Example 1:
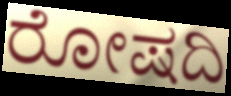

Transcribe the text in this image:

ರೋಷದಿ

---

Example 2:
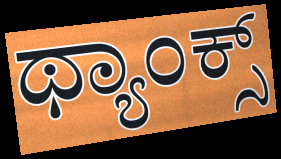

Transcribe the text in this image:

ಥ್ಯಾಂಕ್ಸ್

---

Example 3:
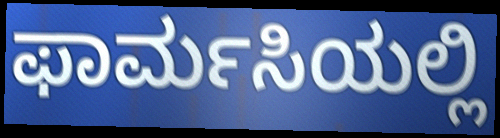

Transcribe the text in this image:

ಫಾರ್ಮಸಿಯಲ್ಲಿ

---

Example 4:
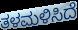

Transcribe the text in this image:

ತಳಮಳಿಸಿದೆ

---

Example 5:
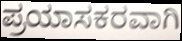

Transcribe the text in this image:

ಪ್ರಯಾಸಕರವಾಗಿ